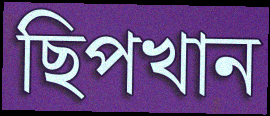
ছিপখান